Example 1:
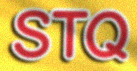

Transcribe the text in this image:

STQ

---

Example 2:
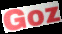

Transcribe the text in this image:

Goz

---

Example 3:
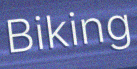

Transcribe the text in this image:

Biking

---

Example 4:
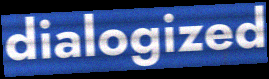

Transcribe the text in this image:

dialogized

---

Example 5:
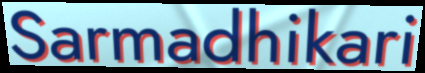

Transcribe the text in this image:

Sarmadhikari